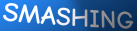
SMASHING